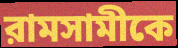
রামসামীকে